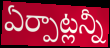
ఏర్పాట్లన్నీ